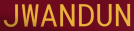
JWANDUN